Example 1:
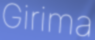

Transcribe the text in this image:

Girima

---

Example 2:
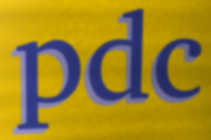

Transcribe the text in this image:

pdc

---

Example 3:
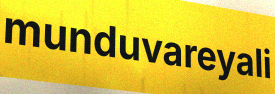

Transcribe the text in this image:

munduvareyali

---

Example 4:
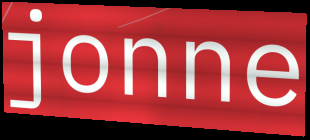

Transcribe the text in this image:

jonne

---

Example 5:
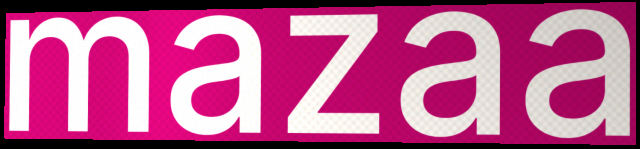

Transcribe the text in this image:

mazaa